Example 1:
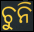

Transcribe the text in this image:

ଚୁନି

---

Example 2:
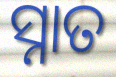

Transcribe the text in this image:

ସ୍ନାତ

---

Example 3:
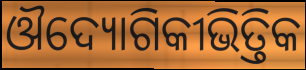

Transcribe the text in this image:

ଔଦ୍ୟୋଗିକୀଭିତ୍ତିକ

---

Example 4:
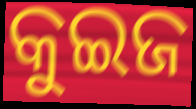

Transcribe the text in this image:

କୁଇଜ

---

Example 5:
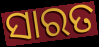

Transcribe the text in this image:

ସାରତ